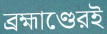
ব্রহ্মাণ্ডেরই